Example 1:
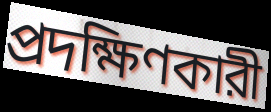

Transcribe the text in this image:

প্রদক্ষিণকারী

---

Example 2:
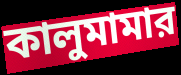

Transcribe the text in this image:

কালুমামার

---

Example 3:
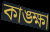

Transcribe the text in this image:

কাঙ্ক্ষা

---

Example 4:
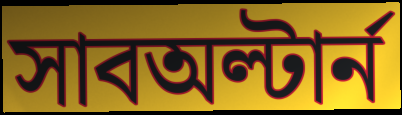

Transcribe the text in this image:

সাবঅল্টার্ন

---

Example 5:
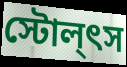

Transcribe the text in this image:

স্টোল্ৎস